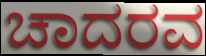
ಚಾದರವ